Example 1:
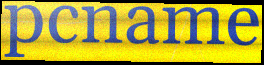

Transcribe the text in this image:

pcname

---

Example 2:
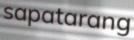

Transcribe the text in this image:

sapatarang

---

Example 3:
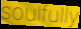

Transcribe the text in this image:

soulfully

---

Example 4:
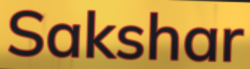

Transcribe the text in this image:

Sakshar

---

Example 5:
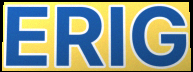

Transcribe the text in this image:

ERIG